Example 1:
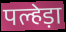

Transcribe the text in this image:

पल्हेड़ा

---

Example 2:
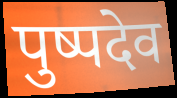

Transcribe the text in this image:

पुष्पदेव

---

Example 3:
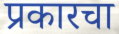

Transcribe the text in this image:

प्रकारचा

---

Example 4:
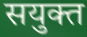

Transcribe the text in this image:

सयुक्‍त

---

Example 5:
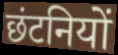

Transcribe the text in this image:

छंटनियों